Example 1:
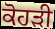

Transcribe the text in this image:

ਕੋਹੜੀ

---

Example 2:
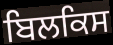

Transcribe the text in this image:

ਬਿਲਕਿਸ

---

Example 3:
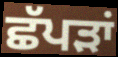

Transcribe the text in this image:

ਛੱਪੜਾਂ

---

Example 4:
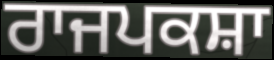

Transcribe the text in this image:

ਰਾਜਪਕਸ਼ਾ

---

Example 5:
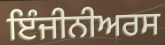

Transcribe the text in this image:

ਇੰਜੀਨੀਅਰਸ